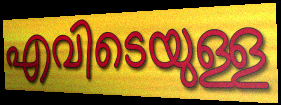
എവിടെയുള്ള